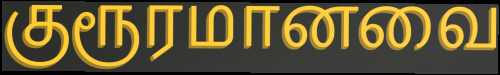
குரூரமானவை